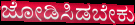
ಜೋಡಿಸಿಡಬೇಕು